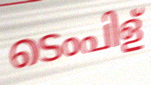
ടെംപിള്